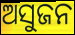
ଅସୁଜନ